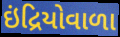
ઇંદ્રિયોવાળા